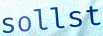
sollst